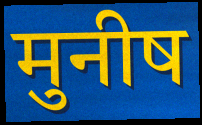
मुनीष